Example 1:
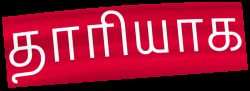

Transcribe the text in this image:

தாரியாக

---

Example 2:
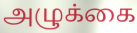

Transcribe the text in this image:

அழுக்கை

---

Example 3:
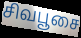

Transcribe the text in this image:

சிவபூசை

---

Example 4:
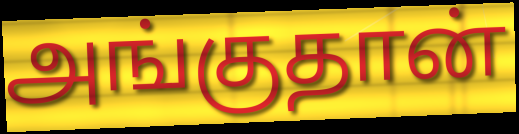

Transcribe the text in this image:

அங்குதான்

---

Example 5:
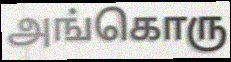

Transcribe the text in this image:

அங்கொரு